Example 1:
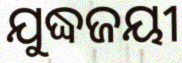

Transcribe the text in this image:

ଯୁଦ୍ଧଜୟୀ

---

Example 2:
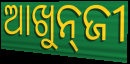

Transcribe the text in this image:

ଆଖୁନ୍‌ଜୀ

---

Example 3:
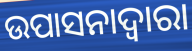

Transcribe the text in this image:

ଉପାସନାଦ୍ଵାରା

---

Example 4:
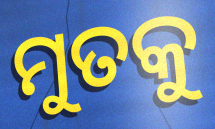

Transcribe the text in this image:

ମୁତକୁ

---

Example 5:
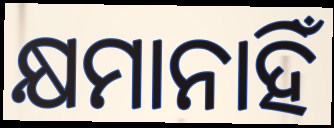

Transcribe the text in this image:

କ୍ଷମାନାହିଁ